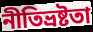
নীতিভ্রষ্টতা